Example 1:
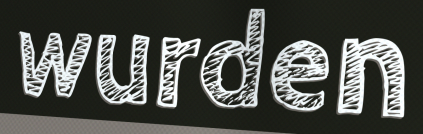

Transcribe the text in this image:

wurden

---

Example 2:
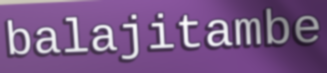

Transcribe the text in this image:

balajitambe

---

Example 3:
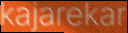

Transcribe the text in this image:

kajarekar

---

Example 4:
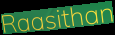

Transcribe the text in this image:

Raasithan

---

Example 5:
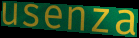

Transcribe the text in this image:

usenza